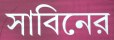
সাবিনের